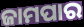
ଜାମପାର